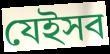
যেইসব